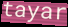
tayar